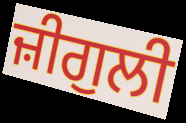
ਜ਼ੀਗੁਲੀ